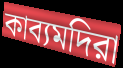
কাব্যমদিরা